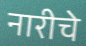
नारीचे